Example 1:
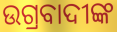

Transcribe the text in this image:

ଉଗ୍ରବାଦୀଙ୍କ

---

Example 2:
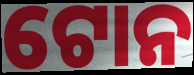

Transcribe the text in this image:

ଟୋନ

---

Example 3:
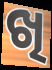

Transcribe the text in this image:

ଖି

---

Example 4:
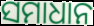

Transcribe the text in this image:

ସମାଧାନ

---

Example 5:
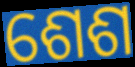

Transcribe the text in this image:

ଶେଶ